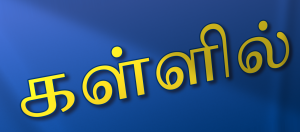
கள்ளில்